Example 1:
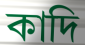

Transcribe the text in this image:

কাদি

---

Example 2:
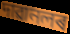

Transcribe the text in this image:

দাৱানলৰ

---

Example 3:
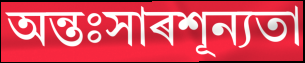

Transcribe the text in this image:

অন্তঃসাৰশূন্যতা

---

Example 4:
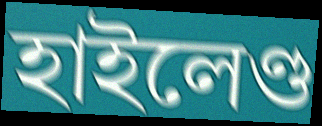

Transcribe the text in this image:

হাইলেণ্ড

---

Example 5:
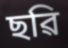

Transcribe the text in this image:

ছৱি